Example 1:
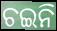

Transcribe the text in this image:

ଚଇନି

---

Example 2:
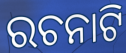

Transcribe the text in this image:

ରଚନାଟି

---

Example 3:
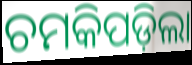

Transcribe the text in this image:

ଚମକିପଡ଼ିଲା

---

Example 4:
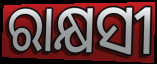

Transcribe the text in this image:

ରାକ୍ଷସୀ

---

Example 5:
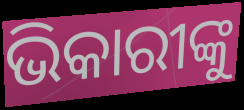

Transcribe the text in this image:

ଭିକାରୀଙ୍କୁ